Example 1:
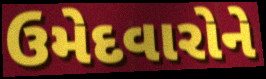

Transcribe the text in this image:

ઉમેદવારોને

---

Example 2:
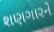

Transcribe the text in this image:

શણગારને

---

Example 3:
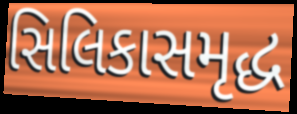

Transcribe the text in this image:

સિલિકાસમૃદ્ધ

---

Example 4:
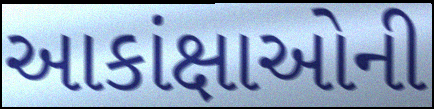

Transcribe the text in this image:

આકાંક્ષાઓની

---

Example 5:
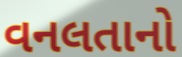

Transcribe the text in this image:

વનલતાનો